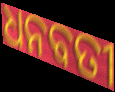
ଧନବତୀ